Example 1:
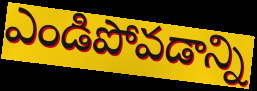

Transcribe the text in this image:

ఎండిపోవడాన్ని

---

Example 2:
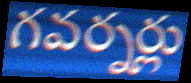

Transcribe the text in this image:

గవర్నర్లు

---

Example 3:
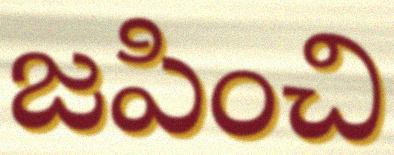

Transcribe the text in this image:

జపించి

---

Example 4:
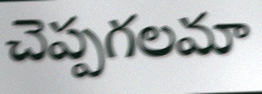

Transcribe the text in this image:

చెప్పగలమా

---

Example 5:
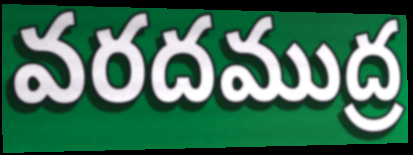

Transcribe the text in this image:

వరదముద్ర